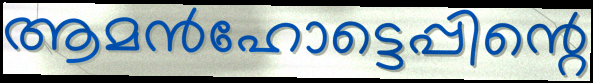
ആമൻഹോട്ടെപ്പിന്റെ